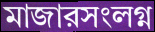
মাজারসংলগ্ন